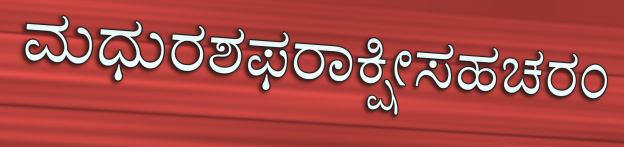
ಮಧುರಶಫರಾಕ್ಷೀಸಹಚರಂ